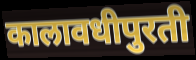
कालावधीपुरती